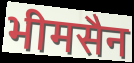
भीमसैन